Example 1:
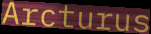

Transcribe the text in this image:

Arcturus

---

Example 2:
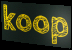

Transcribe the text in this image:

koop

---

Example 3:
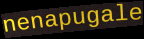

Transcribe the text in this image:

nenapugale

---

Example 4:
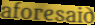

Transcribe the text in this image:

aforesaid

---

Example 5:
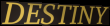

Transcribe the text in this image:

DESTINY